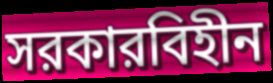
সরকারবিহীন